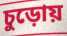
চুড়োয়